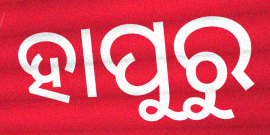
ହାପୁରୁ